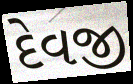
દેવજી